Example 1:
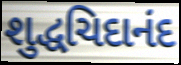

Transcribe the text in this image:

શુદ્ધચિદાનંદ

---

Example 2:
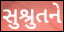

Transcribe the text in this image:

સુશ્રુતને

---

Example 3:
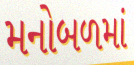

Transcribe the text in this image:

મનોબળમાં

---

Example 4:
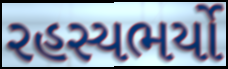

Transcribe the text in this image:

રહસ્યભર્યો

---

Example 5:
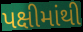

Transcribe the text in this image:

પક્ષીમાંથી